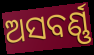
ଅସବର୍ଣ୍ଣ